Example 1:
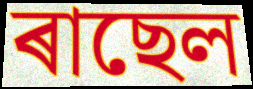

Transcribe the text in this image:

ৰাছেল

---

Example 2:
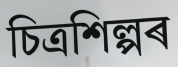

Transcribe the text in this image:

চিত্ৰশিল্পৰ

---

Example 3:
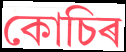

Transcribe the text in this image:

কোচিৰ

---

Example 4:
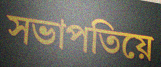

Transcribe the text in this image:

সভাপতিয়ে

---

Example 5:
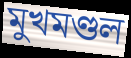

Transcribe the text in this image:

মুখমণ্ডল